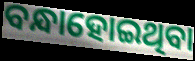
ବନ୍ଧାହୋଇଥିବା